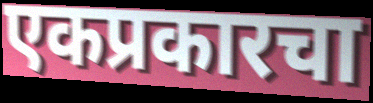
एकप्रकारचा